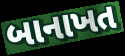
બાનાખત